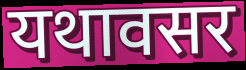
यथावसर